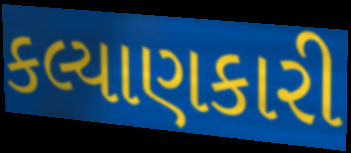
કલ્યાણકારી